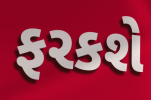
ફરકશે